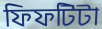
ফিফটিটা